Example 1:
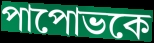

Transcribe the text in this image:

পাপোভকে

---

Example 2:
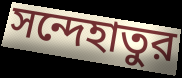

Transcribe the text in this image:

সন্দেহাতুর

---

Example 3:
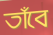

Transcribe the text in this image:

তাঁবে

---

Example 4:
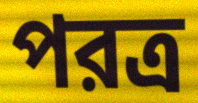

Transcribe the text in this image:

পরত্র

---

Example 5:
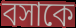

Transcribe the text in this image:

বসাকে